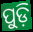
ପୁଡ଼ି